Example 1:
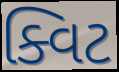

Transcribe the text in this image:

ક્વિટ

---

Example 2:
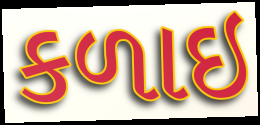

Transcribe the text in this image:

કળાઇ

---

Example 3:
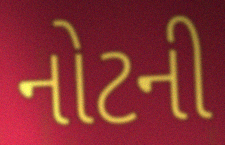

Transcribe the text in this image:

નોટની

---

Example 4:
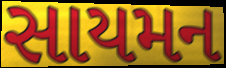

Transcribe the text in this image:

સાયમન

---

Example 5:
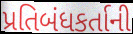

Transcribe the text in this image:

પ્રતિબંધકર્તાની